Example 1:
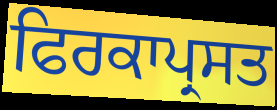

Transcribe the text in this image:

ਫਿਰਕਾਪ੍ਰਸਤ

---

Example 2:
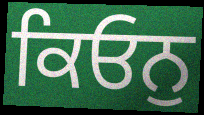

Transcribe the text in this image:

ਕਿਓਨੁ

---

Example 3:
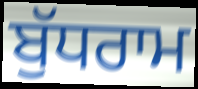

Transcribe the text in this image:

ਬੁੱਧਰਾਮ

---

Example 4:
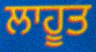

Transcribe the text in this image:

ਲਾਹੂਤ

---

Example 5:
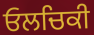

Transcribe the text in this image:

ਓਲਚਿਕੀ